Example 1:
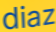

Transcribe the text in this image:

diaz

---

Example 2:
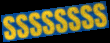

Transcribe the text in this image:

SSSSSSSS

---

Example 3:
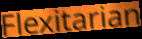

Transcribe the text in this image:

Flexitarian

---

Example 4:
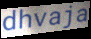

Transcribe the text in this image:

dhvaja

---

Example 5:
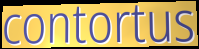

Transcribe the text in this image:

contortus